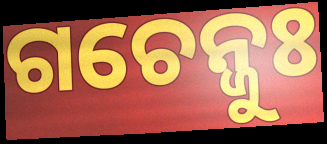
ଗଚେନ୍ଜୁଃ